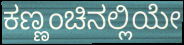
ಕಣ್ಣಂಚಿನಲ್ಲಿಯೇ